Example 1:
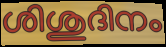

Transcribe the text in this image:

ശിശുദിനം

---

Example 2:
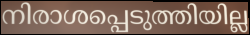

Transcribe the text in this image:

നിരാശപ്പെടുത്തിയില്ല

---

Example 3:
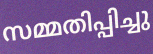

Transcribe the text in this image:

സമ്മതിപ്പിച്ചു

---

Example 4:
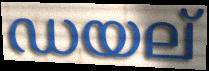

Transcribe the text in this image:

ഡയല്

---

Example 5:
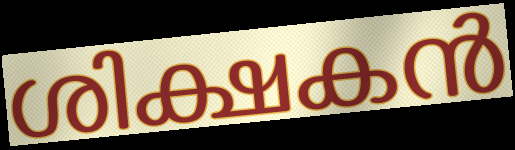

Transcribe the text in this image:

ശിക്ഷകൻ